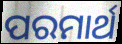
ପରମାର୍ଥ